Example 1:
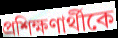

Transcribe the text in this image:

প্রশিক্ষণার্থীকে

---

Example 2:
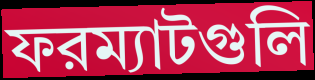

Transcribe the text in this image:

ফরম্যাটগুলি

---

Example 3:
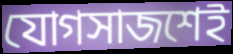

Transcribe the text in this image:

যোগসাজশেই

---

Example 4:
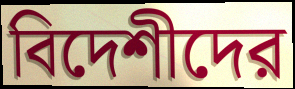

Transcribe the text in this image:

বিদেশীদের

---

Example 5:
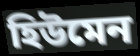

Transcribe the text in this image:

হিউমেন